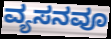
ವ್ಯಸನವೂ